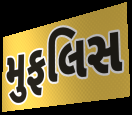
મુફલિસ